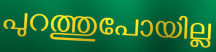
പുറത്തുപോയില്ല